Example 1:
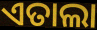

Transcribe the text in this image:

ଏତାଲା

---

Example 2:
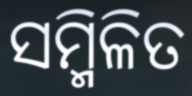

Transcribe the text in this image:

ସମ୍ମିଳିତ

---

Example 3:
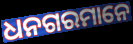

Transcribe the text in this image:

ଧନଗରମାନେ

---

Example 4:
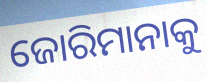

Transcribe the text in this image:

ଜୋରିମାନାକୁ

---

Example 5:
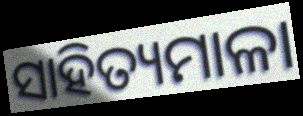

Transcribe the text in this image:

ସାହିତ୍ୟମାଳା